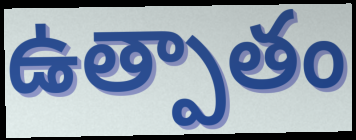
ఉత్పాతం